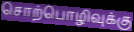
சொற்பொழிவுக்கு